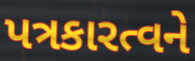
પત્રકારત્વને